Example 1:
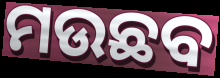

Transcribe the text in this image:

ମଉଛବ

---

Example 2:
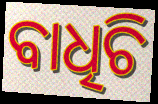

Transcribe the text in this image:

ବାଧିଚି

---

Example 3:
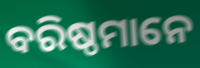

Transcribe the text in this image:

ବରିଷ୍ଠମାନେ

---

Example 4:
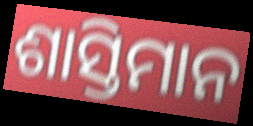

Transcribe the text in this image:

ଶାସ୍ତିମାନ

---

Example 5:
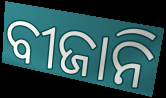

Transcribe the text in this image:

ବୀଜାନି